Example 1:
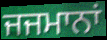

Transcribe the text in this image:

ਜਜਮਾਨਾਂ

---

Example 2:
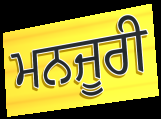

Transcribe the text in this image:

ਮਨਜੂਰੀ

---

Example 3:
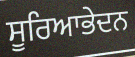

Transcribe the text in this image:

ਸੂਰਿਆਭੇਦਨ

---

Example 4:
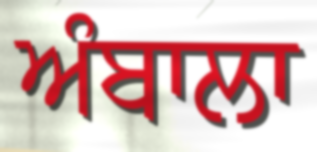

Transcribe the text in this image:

ਅੰਬਾਲਾ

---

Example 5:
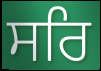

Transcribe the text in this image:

ਸਰਿ